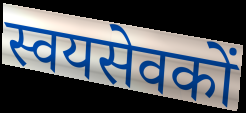
स्वयसेवकों